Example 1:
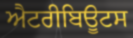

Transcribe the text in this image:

ਐਟਰੀਬਿਊਟਸ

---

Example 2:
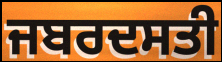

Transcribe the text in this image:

ਜਬਰਦਸਤੀ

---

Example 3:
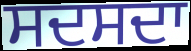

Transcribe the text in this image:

ਸਦਸਦਾ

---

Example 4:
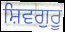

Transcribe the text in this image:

ਸ਼ਿਵਗੁਰੂ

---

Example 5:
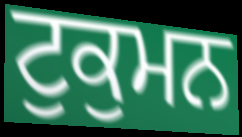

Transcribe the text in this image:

ਟੁਕੁਮਨ